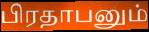
பிரதாபனும்